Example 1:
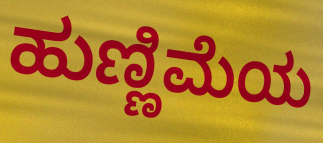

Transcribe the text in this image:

ಹುಣ್ಣಿಮೆಯ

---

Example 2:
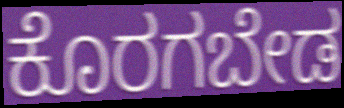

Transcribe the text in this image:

ಕೊರಗಬೇಡ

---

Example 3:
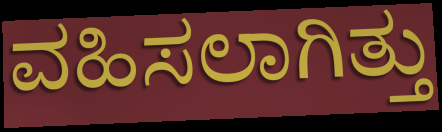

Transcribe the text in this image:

ವಹಿಸಲಾಗಿತ್ತು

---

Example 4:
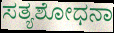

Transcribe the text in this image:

ಸತ್ಯಶೋಧನಾ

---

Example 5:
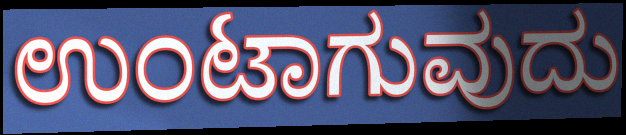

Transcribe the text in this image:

ಉಂಟಾಗುವುದು